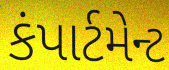
કંપાર્ટમેન્ટ